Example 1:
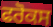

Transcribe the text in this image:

ਫਰੋਕਸ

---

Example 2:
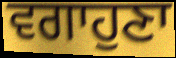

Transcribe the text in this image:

ਵਗਾਹੁਣਾ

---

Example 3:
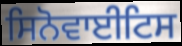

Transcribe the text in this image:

ਸਿਨੋਵਾਈਟਿਸ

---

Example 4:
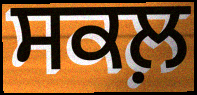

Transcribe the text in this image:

ਸਕਲ਼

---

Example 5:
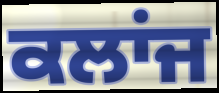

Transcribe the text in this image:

ਕਲਾਂਜ